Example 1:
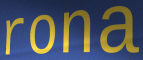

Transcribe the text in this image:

rona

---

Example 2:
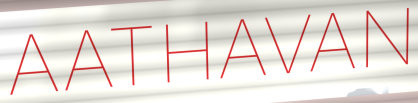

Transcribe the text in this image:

AATHAVAN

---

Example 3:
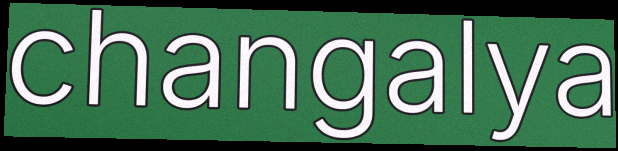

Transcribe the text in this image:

changalya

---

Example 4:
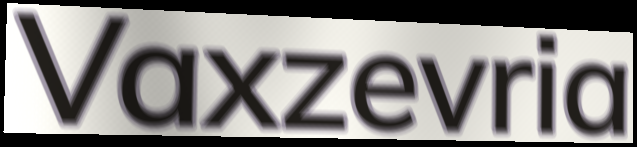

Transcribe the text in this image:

Vaxzevria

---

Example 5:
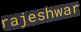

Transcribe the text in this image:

rajeshwar